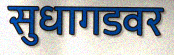
सुधागडवर